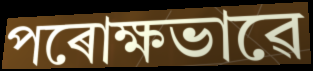
পৰোক্ষভাৱে